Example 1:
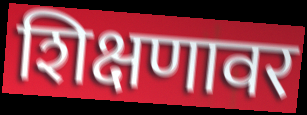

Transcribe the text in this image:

शिक्षणावर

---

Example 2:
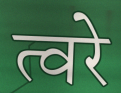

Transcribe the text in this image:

त्वरे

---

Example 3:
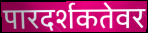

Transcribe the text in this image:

पारदर्शकतेवर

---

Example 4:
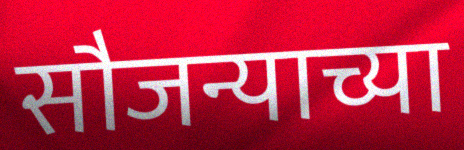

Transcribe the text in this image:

सौजन्याच्या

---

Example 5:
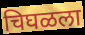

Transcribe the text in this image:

चिघळला